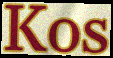
Kos